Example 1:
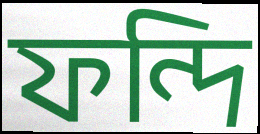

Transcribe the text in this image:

ফন্দি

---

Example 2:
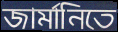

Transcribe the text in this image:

জার্মানিতে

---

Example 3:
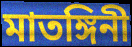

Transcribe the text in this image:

মাতঙ্গিনী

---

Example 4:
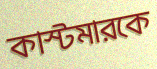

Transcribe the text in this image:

কাস্টমারকে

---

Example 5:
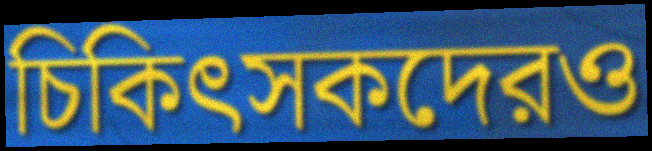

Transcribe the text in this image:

চিকিৎসকদেরও